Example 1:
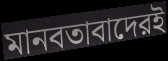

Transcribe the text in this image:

মানবতাবাদেরই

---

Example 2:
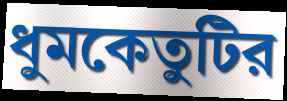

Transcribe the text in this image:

ধুমকেতুটির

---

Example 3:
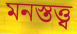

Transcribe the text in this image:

মনস্তত্ত্ব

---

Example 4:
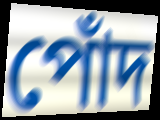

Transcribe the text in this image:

পোঁদ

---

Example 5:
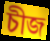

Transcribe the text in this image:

চীজ